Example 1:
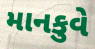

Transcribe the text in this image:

માનકુવે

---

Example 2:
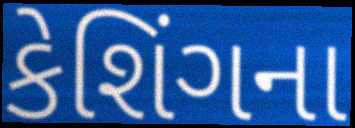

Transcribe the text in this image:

કેશિંગના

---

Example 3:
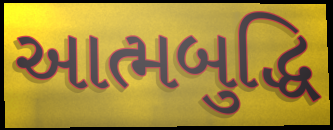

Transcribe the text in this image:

આત્મબુદ્ધિ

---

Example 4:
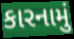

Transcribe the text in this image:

કારનામું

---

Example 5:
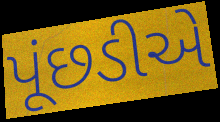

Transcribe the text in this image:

પૂંછડીએ